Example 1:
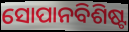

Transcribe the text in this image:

ସୋପାନବିଶିଷ୍ଟ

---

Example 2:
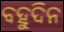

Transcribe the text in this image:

ବହୁଦିନ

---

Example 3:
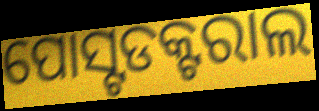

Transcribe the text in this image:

ପୋସ୍ଟଡକ୍ଟରାଲ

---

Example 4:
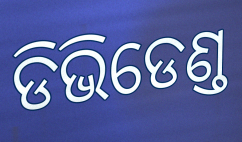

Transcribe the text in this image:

ଡିଭିଡେଣ୍ଡ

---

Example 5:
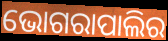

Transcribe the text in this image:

ଭୋଗରାପାଲିର